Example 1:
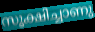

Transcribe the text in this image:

സൂക്ഷിച്ചാണു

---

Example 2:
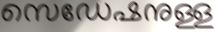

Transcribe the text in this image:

സെഡേഷനുള്ള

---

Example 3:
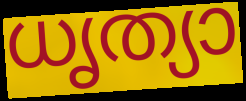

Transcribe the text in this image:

ധൃത്യാ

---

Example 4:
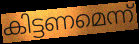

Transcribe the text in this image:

കിട്ടണമെന്ന്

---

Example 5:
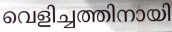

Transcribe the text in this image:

വെളിച്ചത്തിനായി